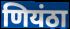
णियंठा